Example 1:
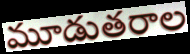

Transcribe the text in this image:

మూడుతరాల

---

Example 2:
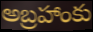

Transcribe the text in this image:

అబ్రహాంకు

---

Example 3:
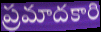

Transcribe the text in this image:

ప్రమాదకారి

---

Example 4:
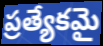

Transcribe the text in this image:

ప్రత్యేకమై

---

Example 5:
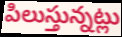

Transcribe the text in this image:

పిలుస్తున్నట్లు